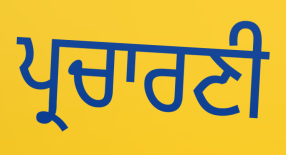
ਪ੍ਰਚਾਰਣੀ